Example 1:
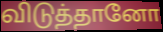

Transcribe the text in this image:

விடுத்தானோ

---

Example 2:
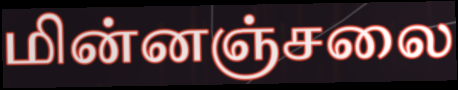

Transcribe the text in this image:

மின்னஞ்சலை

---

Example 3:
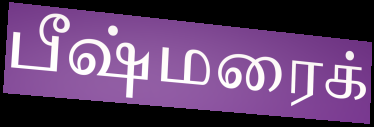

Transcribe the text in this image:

பீஷ்மரைக்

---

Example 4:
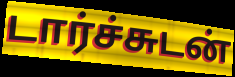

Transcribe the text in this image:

டார்ச்சுடன்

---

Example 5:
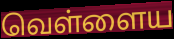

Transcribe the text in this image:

வெள்ளைய